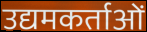
उद्यमकर्ताओं